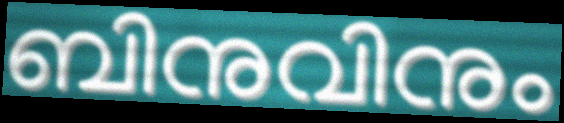
ബിനുവിനും